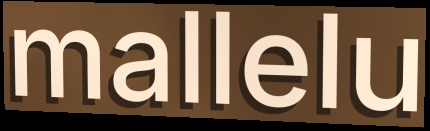
mallelu